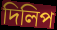
দিলিপ